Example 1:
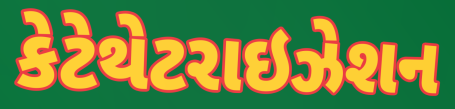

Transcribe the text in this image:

કેટેથેટરાઇઝેશન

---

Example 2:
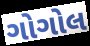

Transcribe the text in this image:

ગોગોલ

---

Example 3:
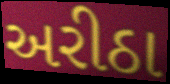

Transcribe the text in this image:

અરીઠા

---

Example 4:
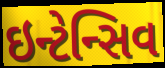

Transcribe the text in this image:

ઇન્ટેન્સિવ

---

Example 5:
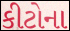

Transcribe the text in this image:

કીટોના